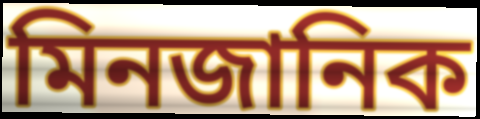
মিনজানিক